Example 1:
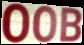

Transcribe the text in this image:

OOB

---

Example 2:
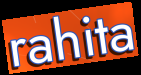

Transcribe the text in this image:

rahita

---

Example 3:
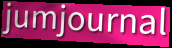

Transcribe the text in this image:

jumjournal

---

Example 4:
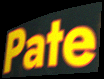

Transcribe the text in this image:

Pate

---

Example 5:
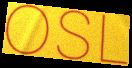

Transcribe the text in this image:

OSL